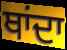
ਥਾਂਦਾ